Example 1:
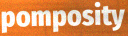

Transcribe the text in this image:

pomposity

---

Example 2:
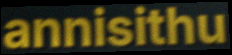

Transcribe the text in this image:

annisithu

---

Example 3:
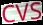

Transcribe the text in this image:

CVS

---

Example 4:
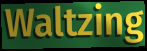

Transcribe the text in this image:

Waltzing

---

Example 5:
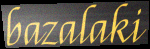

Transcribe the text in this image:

bazalaki